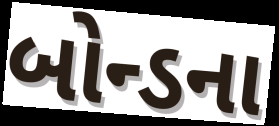
બોન્ડના